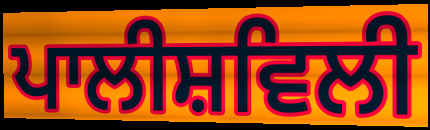
ਪਾਲੀਸ਼ਵਿਲੀ